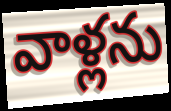
వాళ్లను